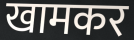
खामकर